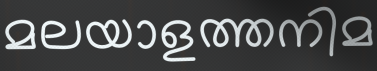
മലയാളത്തനിമ